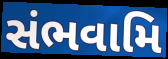
સંભવામિ